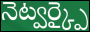
నెట్వర్క్పై